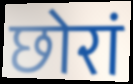
छोरां